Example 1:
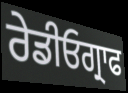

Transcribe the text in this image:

ਰੇਡੀਓਗ੍ਰਾਫ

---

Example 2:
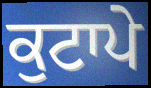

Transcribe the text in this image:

ਕੁਟਾਪੇ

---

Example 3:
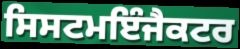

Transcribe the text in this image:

ਸਿਸਟਮਇੰਜੈਕਟਰ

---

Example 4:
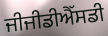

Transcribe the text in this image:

ਜੀਜੀਡੀਐੱਸਡੀ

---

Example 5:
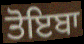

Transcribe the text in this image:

ਤੋਇਬਾ